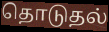
தொடுதல்